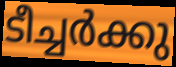
ടീച്ചർക്കു